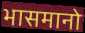
भासमानो